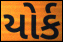
યોર્ક